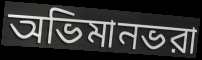
অভিমানভরা